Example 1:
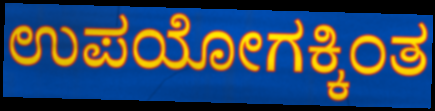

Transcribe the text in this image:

ಉಪಯೋಗಕ್ಕಿಂತ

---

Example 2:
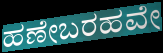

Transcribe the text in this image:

ಹಣೇಬರಹವೇ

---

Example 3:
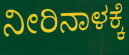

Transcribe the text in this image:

ನೀರಿನಾಳಕ್ಕೆ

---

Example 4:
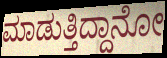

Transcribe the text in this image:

ಮಾಡುತ್ತಿದ್ದಾನೋ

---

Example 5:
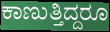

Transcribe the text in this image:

ಕಾಣುತ್ತಿದ್ದರೂ